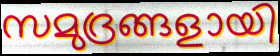
സമുദ്രങ്ങളായി